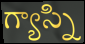
గ్యాస్ని